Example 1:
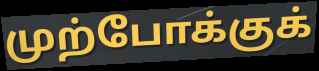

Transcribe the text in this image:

முற்போக்குக்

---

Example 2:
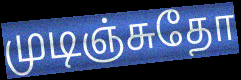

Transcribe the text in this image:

முடிஞ்சுதோ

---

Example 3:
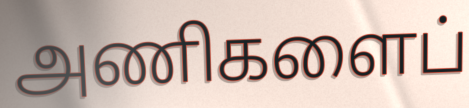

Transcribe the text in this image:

அணிகளைப்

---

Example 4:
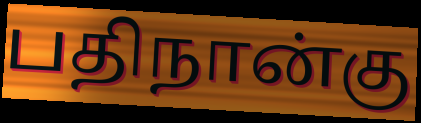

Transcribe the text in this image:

பதிநான்கு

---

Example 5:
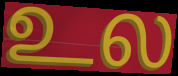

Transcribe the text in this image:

உல